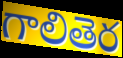
గాలితెర